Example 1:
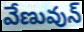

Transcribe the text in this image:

వేణువున్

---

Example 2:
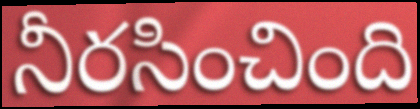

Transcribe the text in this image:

నీరసించింది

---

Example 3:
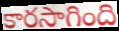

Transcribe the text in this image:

కారసాగింది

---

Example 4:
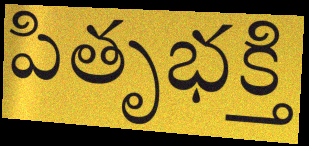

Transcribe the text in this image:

పితృభక్తి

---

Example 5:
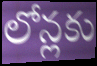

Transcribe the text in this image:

లోన్లకు